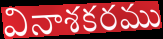
వినాశకరము